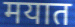
मयात